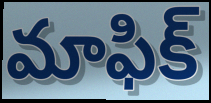
మాఫిక్